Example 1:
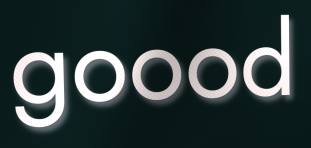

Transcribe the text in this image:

goood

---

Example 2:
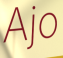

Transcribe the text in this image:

Ajo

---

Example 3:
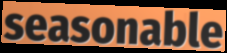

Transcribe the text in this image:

seasonable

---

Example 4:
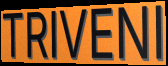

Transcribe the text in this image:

TRIVENI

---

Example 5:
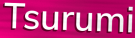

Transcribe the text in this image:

Tsurumi